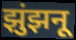
झुंझनू